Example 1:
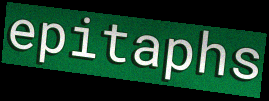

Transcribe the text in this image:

epitaphs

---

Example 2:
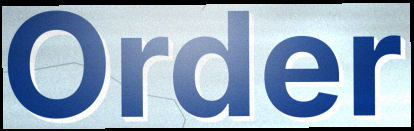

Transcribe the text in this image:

Order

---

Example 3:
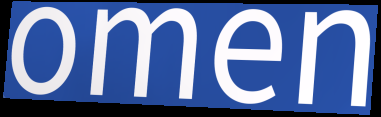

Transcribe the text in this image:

omen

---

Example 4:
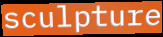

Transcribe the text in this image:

sculpture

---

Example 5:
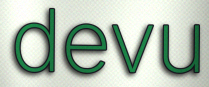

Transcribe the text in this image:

devu